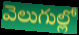
వెలుగుల్లో